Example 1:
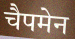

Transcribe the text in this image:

चैपमेन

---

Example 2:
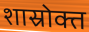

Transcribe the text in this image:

शास्रोक्त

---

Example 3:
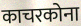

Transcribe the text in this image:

काचरकोना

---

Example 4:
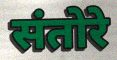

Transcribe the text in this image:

संतोरे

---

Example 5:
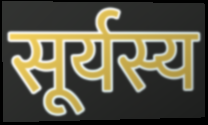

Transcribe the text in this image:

सूर्यस्य